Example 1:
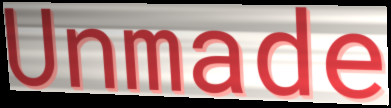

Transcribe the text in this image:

Unmade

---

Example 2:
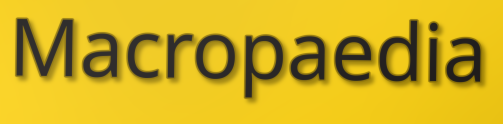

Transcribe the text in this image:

Macropaedia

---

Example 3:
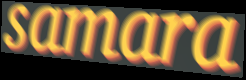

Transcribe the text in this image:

samara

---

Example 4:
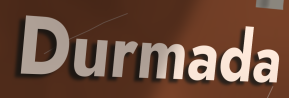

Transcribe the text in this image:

Durmada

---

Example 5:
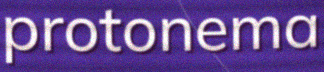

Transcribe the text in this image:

protonema